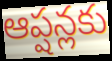
ఆప్షన్లకు